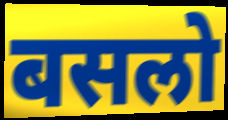
बसलो